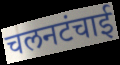
चलनटंचाई